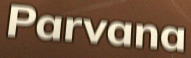
Parvana